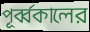
পূর্ব্বকালের